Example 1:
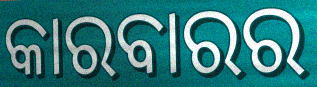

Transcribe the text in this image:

କାରବାରର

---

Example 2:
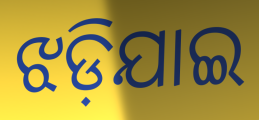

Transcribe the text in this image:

ଝଡ଼ିଯାଇ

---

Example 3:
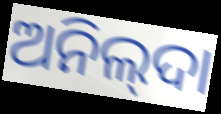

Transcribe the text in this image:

ଅନିଲ୍‌ଦା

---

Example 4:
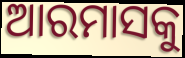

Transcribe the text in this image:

ଆରମାସକୁ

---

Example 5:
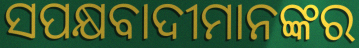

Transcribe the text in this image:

ସପକ୍ଷବାଦୀମାନଙ୍କର